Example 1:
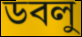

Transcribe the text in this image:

ডবলু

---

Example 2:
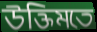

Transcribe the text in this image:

উক্তিমতে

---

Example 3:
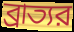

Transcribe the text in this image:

ব্রাত্যর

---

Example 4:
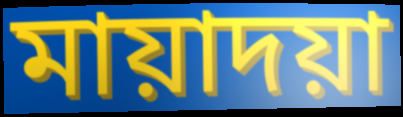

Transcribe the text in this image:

মায়াদয়া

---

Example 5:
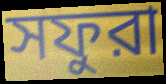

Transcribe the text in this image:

সফুরা